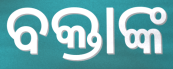
ବକ୍ତାଙ୍କ